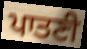
ਪਾਤਣੀ